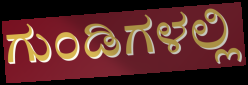
ಗುಂಡಿಗಳಲ್ಲಿ